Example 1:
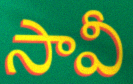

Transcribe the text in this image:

సావీ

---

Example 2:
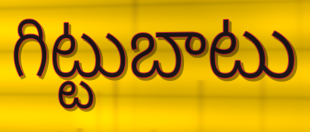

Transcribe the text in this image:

గిట్టుబాటు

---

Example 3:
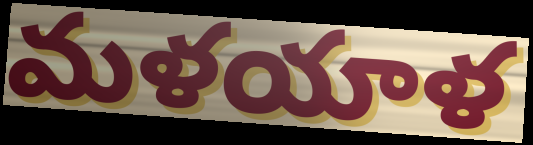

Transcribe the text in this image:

మళయాళ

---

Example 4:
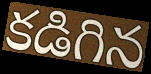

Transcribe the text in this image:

కడిగిన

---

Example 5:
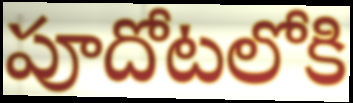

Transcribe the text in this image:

పూదోటలోకి